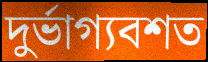
দুর্ভাগ্যবশত